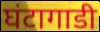
घंटागाडी